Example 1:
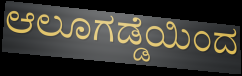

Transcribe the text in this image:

ಆಲೂಗಡ್ಡೆಯಿಂದ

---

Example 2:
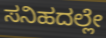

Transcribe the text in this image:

ಸನಿಹದಲ್ಲೇ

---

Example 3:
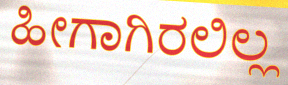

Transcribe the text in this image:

ಹೀಗಾಗಿರಲಿಲ್ಲ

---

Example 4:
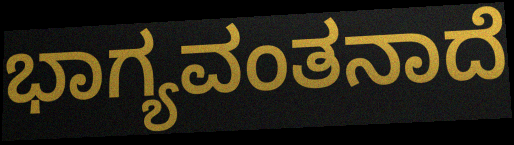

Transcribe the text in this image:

ಭಾಗ್ಯವಂತನಾದೆ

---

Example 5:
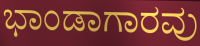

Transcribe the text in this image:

ಭಾಂಡಾಗಾರವು